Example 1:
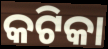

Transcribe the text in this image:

କଟିକା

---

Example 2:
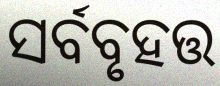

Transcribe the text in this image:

ସର୍ବବୃହତ୍ତ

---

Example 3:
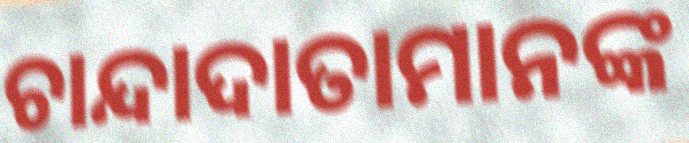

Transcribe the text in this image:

ଚାନ୍ଦାଦାତାମାନଙ୍କ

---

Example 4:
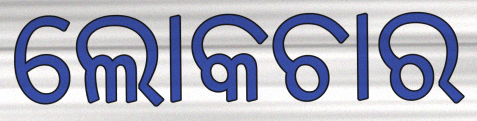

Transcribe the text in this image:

ଲୋକଚାର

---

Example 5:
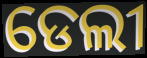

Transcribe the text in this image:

ଡେଲୀ